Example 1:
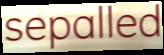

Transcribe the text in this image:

sepalled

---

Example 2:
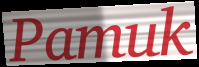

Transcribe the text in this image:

Pamuk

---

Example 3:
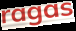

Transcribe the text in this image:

ragas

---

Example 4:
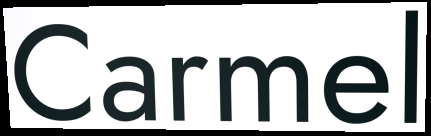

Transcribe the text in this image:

Carmel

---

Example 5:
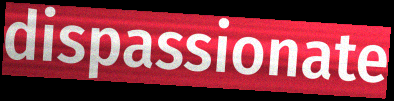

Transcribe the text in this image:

dispassionate